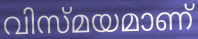
വിസ്മയമാണ്